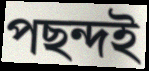
পছন্দই